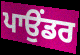
ਪਾਉਂਡਰ